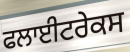
ਫਲਾਈਟਰੇਕਸ